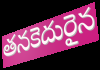
తనకెదురైన